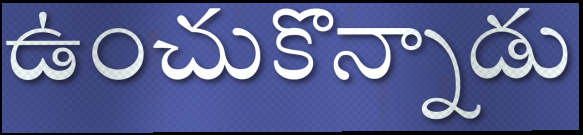
ఉంచుకొన్నాడు